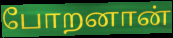
போறனான்